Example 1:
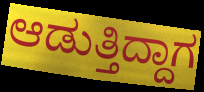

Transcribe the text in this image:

ಆಡುತ್ತಿದ್ದಾಗ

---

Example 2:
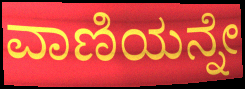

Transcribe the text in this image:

ವಾಣಿಯನ್ನೇ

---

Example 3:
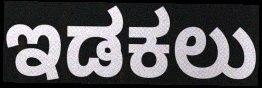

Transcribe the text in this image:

ಇಡಕಲು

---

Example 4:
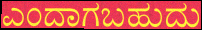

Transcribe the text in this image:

ಎಂದಾಗಬಹುದು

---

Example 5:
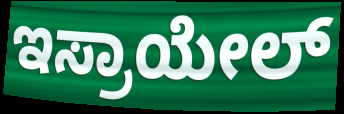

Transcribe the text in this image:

ಇಸ್ರಾಯೇಲ್